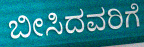
ಬೀಸಿದವರಿಗೆ